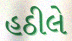
હઠીલે